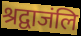
श्रद्वाजंलि